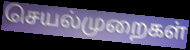
செயல்முறைகள்